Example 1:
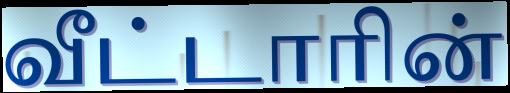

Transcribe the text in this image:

வீட்டாரின்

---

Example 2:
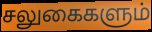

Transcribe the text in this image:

சலுகைகளும்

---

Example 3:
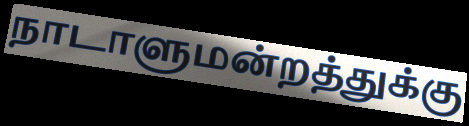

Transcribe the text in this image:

நாடாளுமன்றத்துக்கு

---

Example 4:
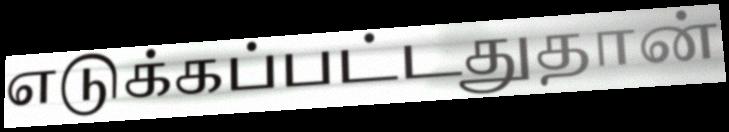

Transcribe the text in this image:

எடுக்கப்பட்டதுதான்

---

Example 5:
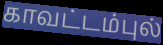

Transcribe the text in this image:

காவட்டம்புல்